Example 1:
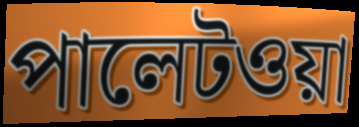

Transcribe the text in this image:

পালেটওয়া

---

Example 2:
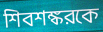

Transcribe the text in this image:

শিবশঙ্করকে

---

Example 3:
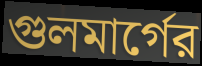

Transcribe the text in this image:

গুলমার্গের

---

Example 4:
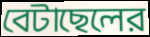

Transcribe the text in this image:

বেটাছেলের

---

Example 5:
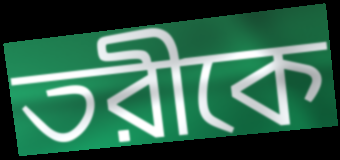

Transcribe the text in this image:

তরীকে